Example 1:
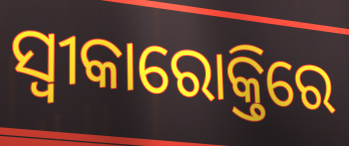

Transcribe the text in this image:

ସ୍ଵୀକାରୋକ୍ତିରେ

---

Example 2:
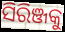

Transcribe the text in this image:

ସିରିଞ୍ଜକୁ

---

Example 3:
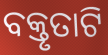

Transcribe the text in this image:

ବକ୍ତୃତାଟି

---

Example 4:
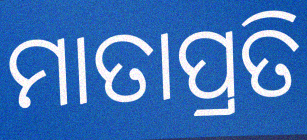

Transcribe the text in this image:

ମାତାପ୍ରତି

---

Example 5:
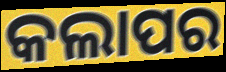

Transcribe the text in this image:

କଲାପର